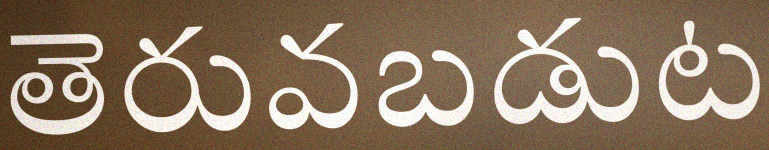
తెరువబడుట